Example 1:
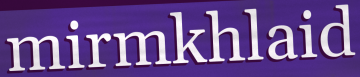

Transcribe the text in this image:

mirmkhlaid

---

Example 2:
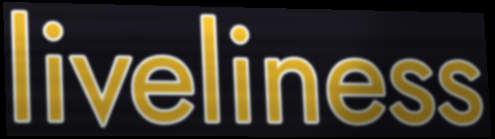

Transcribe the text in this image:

liveliness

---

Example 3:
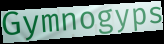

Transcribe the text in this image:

Gymnogyps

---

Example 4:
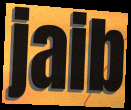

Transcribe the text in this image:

jaib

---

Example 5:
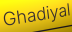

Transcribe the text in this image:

Ghadiyal